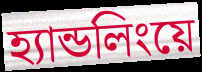
হ্যান্ডলিংয়ে